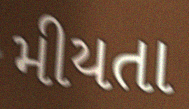
મીયતા